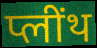
प्लींथ